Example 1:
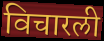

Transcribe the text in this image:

विचारली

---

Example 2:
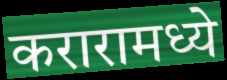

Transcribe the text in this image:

करारामध्ये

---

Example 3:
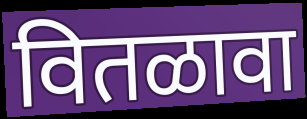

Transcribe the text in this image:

वितळावा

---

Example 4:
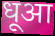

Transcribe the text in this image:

धूआ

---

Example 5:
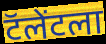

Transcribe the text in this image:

टॅलेंटला